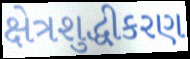
ક્ષેત્રશુદ્ધીકરણ